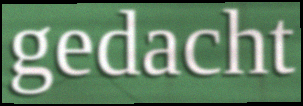
gedacht